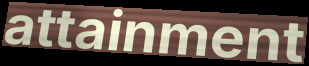
attainment